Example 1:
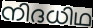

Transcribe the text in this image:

നിദധിഥ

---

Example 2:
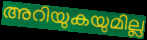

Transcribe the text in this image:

അറിയുകയുമില്ല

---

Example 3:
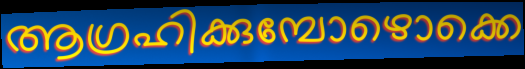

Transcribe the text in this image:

ആഗ്രഹിക്കുമ്പോഴൊക്കെ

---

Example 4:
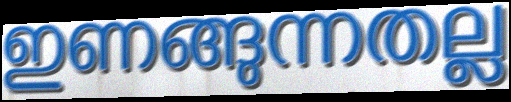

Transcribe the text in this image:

ഇണങ്ങുന്നതല്ല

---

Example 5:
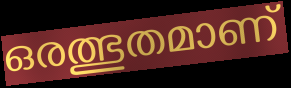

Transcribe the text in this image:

ഒരത്ഭുതമാണ്